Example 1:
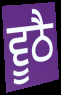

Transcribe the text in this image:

ਵੂਠੈ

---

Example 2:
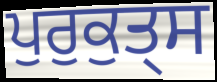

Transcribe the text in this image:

ਪੁਰੁਕੁਤ੍ਸ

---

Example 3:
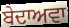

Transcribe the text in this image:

ਬੇਦਾਅਵਾ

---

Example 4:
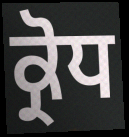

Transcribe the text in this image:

ਕ੍ਰੋਧ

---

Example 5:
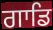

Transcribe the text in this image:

ਗਾਡਿ